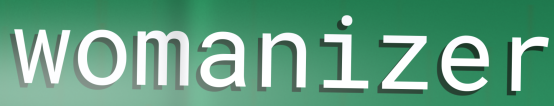
womanizer